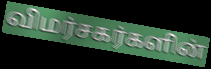
விமர்சகர்களின்